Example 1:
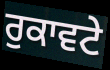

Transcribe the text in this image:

ਰੁਕਾਵਟੇ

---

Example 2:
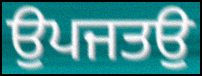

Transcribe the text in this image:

ਉਪਜਤਉ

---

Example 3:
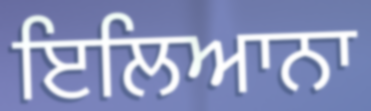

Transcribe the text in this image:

ਇਲਿਆਨਾ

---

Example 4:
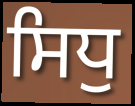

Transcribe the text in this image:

ਸਿਧੁ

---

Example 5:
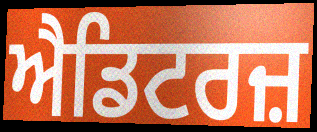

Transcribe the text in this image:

ਐਡਿਟਰਜ਼